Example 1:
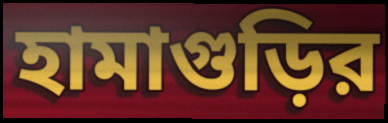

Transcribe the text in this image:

হামাগুড়ির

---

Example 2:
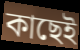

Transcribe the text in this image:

কাছেই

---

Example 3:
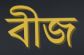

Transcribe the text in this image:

বীজ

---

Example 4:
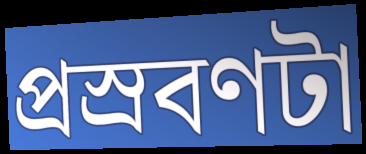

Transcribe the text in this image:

প্রস্রবণটা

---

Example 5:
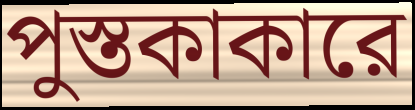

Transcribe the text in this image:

পুস্তকাকারে